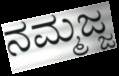
ನಮ್ಮಜ್ಜ